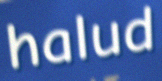
halud